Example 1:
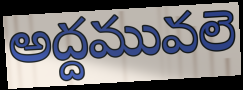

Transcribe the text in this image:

అద్దమువలె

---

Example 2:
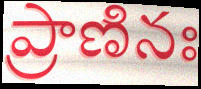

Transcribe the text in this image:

ప్రాణినః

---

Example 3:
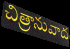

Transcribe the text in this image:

చిత్రానువాద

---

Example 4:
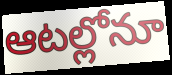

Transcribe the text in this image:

ఆటల్లోనూ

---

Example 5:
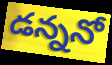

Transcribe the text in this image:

డన్ననో